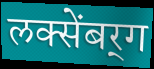
लक्सेंबर्ग